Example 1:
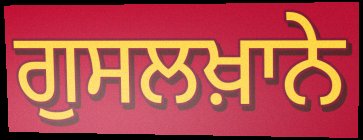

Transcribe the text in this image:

ਗੁਸਲਖ਼ਾਨੇ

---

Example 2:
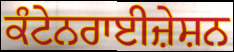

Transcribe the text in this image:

ਕੰਟੇਨਰਾਈਜ਼ੇਸ਼ਨ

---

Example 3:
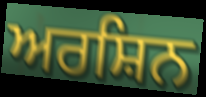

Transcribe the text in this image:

ਅਰਸ਼ਿਨ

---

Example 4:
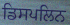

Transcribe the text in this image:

ਡਿਸਪਲਿਨ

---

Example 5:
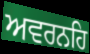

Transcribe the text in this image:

ਅਵਰਨਹਿ